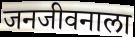
जनजीवनाला